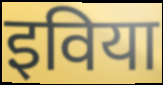
इविया